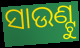
ସାଉଣ୍ଟୁ